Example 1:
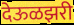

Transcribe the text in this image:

देऊळझरी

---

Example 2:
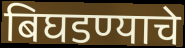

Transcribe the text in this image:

बिघडण्याचे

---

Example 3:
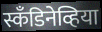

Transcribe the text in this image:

स्कँडिनेव्हिया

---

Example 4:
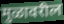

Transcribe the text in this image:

मुळावरील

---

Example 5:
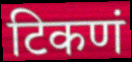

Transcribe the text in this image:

टिकणं